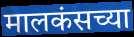
मालकंसच्या